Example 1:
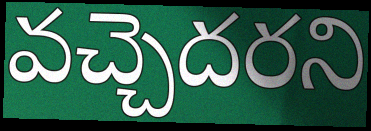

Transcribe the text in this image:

వచ్చెదరని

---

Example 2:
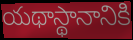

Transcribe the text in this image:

యథాస్థానానికి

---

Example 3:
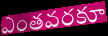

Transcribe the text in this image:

ఎంతవరకూ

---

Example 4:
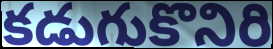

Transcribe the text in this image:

కడుగుకొనిరి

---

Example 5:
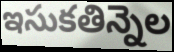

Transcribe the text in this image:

ఇసుకతిన్నెల